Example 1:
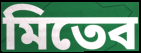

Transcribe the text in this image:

মিতেব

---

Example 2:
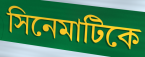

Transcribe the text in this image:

সিনেমাটিকে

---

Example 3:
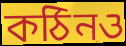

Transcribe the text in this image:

কঠিনও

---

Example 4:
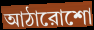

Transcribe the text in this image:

আঠারোশো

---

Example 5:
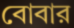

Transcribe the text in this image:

বোবার